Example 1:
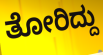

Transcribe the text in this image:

ತೋರಿದ್ದು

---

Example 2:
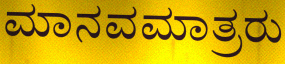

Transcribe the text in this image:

ಮಾನವಮಾತ್ರರು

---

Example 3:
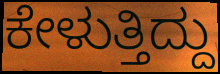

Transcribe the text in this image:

ಕೇಳುತ್ತಿದ್ದು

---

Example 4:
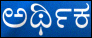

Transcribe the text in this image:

ಅರ್ಥಿಕ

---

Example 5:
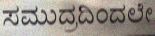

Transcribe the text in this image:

ಸಮುದ್ರದಿಂದಲೇ